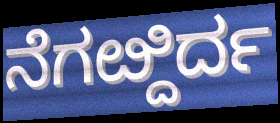
ನೆಗೞ್ದಿರ್ದ